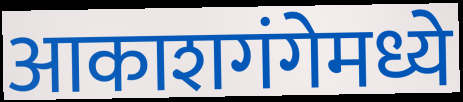
आकाशगंगेमध्ये